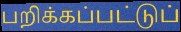
பறிக்கப்பட்டுப்